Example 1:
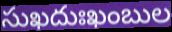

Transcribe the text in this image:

సుఖదుఃఖంబుల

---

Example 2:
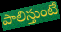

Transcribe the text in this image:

పాలిస్తుంటే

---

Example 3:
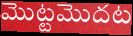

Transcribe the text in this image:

మొట్టమొదట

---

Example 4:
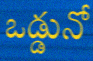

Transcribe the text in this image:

ఒడ్డునో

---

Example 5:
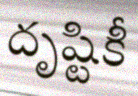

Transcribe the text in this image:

దృష్టికీ